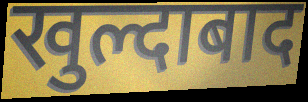
खुल्दाबाद